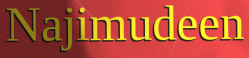
Najimudeen